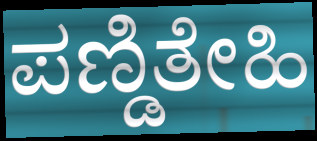
ಪಣ್ಡಿತೇಹಿ